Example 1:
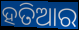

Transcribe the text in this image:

ହତିଆର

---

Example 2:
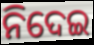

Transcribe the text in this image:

ନିଦେଇ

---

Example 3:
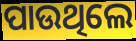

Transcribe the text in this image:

ପାଉଥିଲେ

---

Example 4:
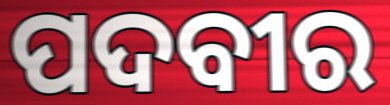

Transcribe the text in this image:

ପଦବୀର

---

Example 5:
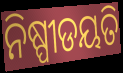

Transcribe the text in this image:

ନିଷ୍ପୀଡୟତି